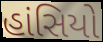
હાંસિયો